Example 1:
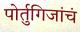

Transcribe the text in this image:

पोर्तुगिजांचं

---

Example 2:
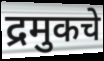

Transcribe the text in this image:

द्रमुकचे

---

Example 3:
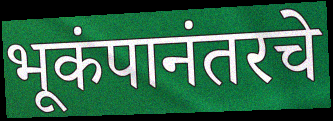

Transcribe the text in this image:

भूकंपानंतरचे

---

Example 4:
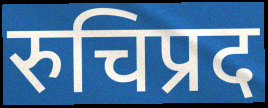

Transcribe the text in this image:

रुचिप्रद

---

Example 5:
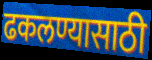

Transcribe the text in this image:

ढकलण्यासाठी